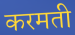
करमती